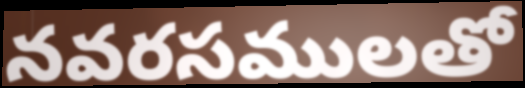
నవరసములతో